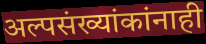
अल्पसंख्यांकांनाही